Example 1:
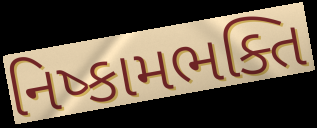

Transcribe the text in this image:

નિષ્કામભક્તિ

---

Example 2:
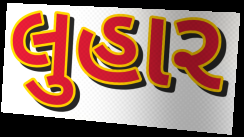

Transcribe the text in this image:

લુહાર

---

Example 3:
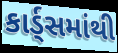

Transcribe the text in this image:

કાર્ડ્સમાંથી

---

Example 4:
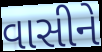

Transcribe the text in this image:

વાસીને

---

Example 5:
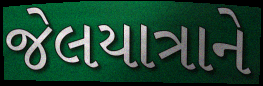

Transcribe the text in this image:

જેલયાત્રાને